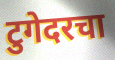
टुगेदरचा